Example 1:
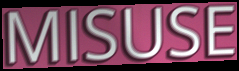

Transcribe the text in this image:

MISUSE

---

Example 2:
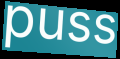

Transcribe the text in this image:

puss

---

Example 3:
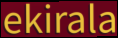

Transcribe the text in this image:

ekirala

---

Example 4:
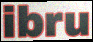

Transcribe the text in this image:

ibru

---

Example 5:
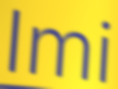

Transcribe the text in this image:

Imi